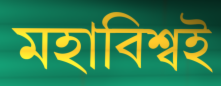
মহাবিশ্বই